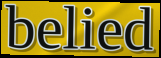
belied